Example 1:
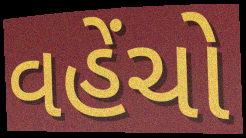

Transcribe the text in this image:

વહેંચો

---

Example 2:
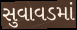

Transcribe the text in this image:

સુવાવડમાં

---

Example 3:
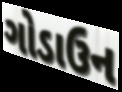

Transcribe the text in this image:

ગોડાઉન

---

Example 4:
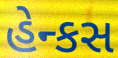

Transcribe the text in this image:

હેન્કસ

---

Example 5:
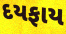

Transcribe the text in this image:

દયફાય